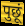
पुछूं